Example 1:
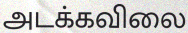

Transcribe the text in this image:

அடக்கவிலை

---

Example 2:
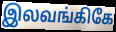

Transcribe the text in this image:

இலவங்கிகே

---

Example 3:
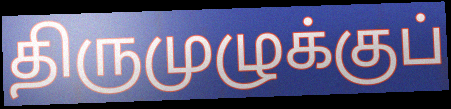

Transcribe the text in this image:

திருமுழுக்குப்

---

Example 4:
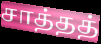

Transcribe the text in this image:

சாத்தத்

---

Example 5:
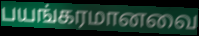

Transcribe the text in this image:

பயங்கரமானவை